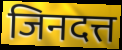
जिनदत्त